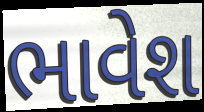
ભાવેશ